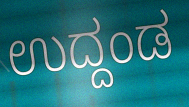
ಉದ್ದಂಡ